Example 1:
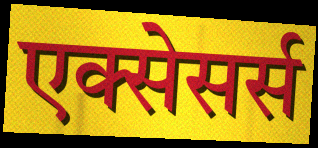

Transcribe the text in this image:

एक्सेसर्स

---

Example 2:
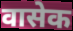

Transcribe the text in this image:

वासेक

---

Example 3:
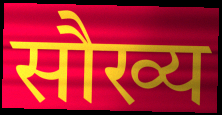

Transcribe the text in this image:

सौख्य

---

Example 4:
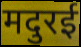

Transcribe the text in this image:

मदुरई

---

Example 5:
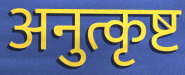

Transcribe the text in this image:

अनुत्कृष्ट